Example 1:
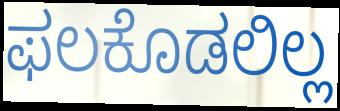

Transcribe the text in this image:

ಫಲಕೊಡಲಿಲ್ಲ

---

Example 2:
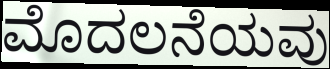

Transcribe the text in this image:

ಮೊದಲನೆಯವು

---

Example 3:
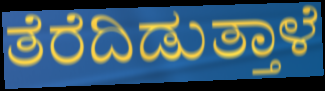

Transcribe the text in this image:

ತೆರೆದಿಡುತ್ತಾಳೆ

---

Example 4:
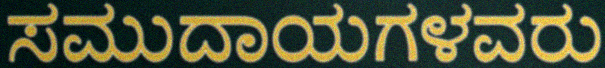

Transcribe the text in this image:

ಸಮುದಾಯಗಳವರು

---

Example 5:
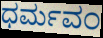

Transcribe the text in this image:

ಧರ್ಮವಂ